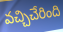
వచ్చిచేరింది